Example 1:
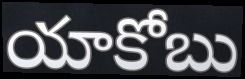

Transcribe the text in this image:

యాకోబు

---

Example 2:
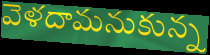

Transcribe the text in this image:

వెళదామనుకున్న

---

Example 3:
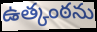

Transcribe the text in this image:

ఉత్కంఠను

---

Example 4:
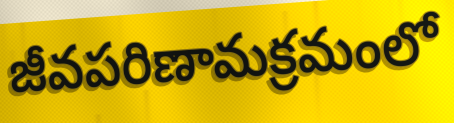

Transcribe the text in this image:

జీవపరిణామక్రమంలో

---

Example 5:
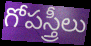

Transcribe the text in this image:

గోపస్త్రీలు